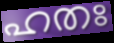
ഹതഃ